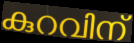
കുറവിന്